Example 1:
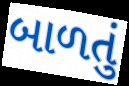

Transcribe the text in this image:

બાળતું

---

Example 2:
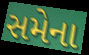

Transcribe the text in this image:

સમેના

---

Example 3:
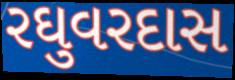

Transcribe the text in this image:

રઘુવરદાસ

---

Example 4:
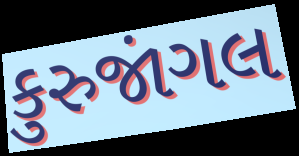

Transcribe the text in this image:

કુરુજાંગલ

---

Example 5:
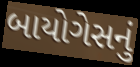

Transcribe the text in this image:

બાયોગેસનું